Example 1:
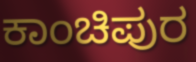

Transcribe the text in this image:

ಕಾಂಚಿಪುರ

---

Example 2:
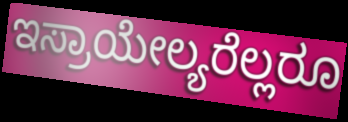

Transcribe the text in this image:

ಇಸ್ರಾಯೇಲ್ಯರೆಲ್ಲರೂ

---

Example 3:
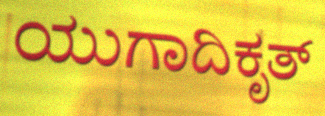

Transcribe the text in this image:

ಯುಗಾದಿಕೃತ್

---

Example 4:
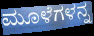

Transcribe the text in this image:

ಮೂಳೆಗಳನ್ನ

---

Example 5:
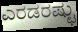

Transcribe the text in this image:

ಎರಡರಷ್ಟು